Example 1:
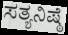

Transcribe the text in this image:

ಸತ್ಯನಿಷ್ಠೆ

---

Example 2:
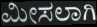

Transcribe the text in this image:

ಮೀಸಲಾಗಿ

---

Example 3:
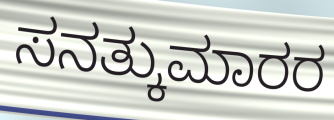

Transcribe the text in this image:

ಸನತ್ಕುಮಾರರ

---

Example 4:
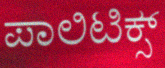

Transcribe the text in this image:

ಪಾಲಿಟಿಕ್ಸ್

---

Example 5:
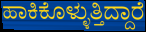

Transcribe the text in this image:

ಹಾಕಿಕೊಳ್ಳುತ್ತಿದ್ದಾರೆ